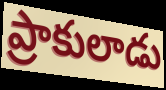
ప్రాకులాడు